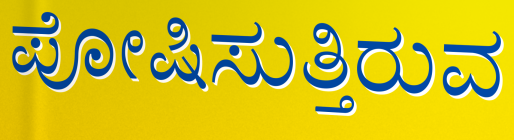
ಪೋಷಿಸುತ್ತಿರುವ